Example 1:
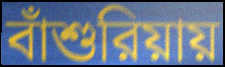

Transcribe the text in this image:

বাঁশুরিয়ায়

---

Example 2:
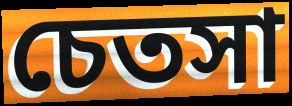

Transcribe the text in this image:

চেতসা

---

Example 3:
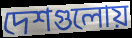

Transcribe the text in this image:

দেশগুলোয়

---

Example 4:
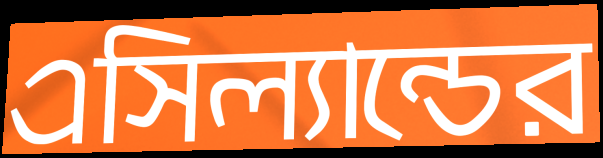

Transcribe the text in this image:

এসিল্যান্ডের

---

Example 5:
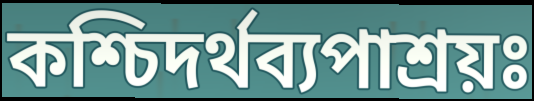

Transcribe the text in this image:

কশ্চিদর্থব্যপাশ্রয়ঃ